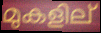
മുകളില്